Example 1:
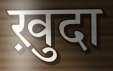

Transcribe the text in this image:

ख़ुदा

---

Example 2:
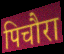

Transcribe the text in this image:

पिचौरा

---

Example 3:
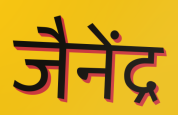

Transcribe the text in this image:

जैनेंद्र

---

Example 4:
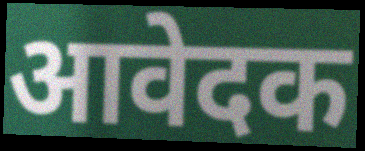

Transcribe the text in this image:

आवेदक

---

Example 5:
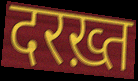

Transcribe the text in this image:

दरख़्त